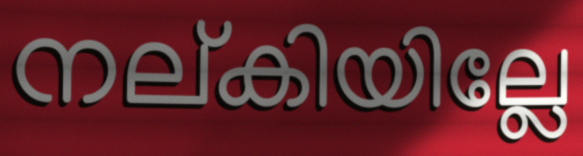
നല്കിയില്ലേ